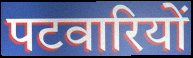
पटवारियों